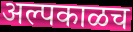
अल्पकाळच